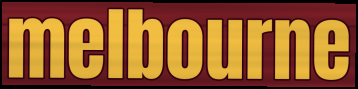
melbourne